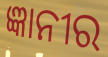
ଜ୍ଞାନୀର